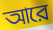
আরে